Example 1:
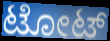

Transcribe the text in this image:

ಟೋಟ್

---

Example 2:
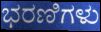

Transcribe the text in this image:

ಭರಣಿಗಳು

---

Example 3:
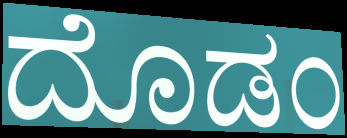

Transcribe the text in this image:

ದೊಡಂ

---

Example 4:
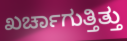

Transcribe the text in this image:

ಖರ್ಚಾಗುತ್ತಿತ್ತು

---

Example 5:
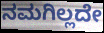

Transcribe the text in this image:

ನಮಗಿಲ್ಲದೇ